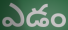
ఎడం